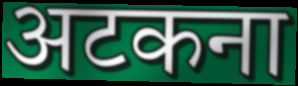
अटकना